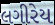
લગીરેય